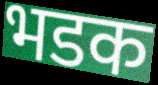
भडक